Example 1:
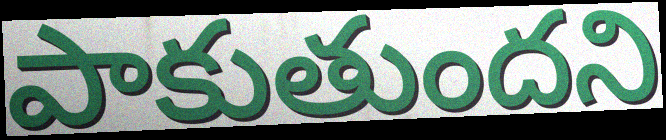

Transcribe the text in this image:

పాకుతుందని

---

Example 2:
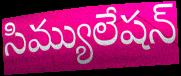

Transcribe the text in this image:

సిమ్యులేషన్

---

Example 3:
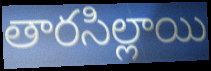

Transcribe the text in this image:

తారసిల్లాయి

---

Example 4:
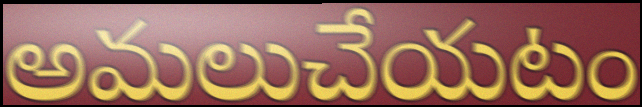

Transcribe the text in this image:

అమలుచేయటం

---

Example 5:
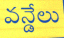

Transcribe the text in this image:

వన్డేలు